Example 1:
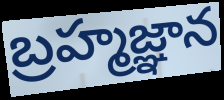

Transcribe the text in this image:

బ్రహ్మజ్ఞాన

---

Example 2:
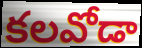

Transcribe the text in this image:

కలవోడా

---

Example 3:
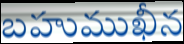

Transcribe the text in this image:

బహుముఖీన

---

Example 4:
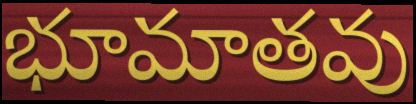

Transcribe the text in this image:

భూమాతవు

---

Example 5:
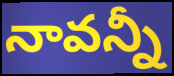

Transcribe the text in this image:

నావన్నీ